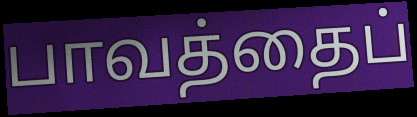
பாவத்தைப்